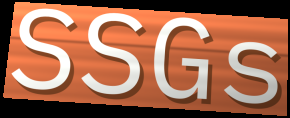
SSGs